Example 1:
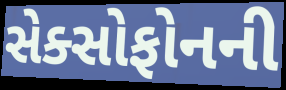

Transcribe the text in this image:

સેક્સોફોનની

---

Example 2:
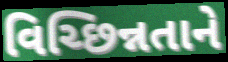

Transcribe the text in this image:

વિચ્છિન્નતાને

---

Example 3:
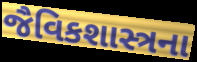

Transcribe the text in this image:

જૈવિકશાસ્ત્રના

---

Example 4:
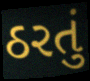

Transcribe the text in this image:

ઠરતું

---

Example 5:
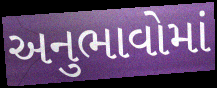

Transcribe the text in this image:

અનુભાવોમાં